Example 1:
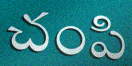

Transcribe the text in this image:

చంపి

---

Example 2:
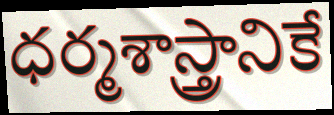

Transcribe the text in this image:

ధర్మశాస్త్రానికే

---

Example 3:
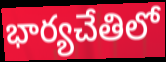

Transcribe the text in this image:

భార్యచేతిలో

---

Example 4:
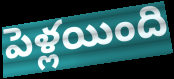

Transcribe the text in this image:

పెళ్లయింది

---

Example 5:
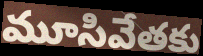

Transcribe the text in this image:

మూసివేతకు